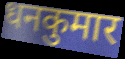
धनकुमार